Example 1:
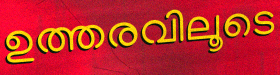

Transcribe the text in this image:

ഉത്തരവിലൂടെ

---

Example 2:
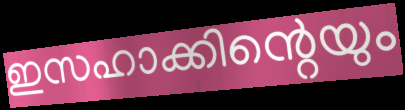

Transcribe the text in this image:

ഇസഹാക്കിന്റെയും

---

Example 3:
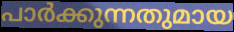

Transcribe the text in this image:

പാർക്കുന്നതുമായ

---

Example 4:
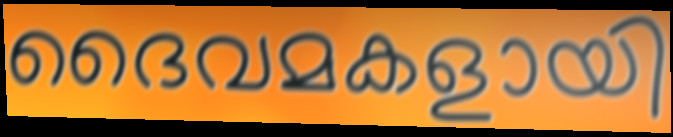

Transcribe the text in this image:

ദൈവമകളായി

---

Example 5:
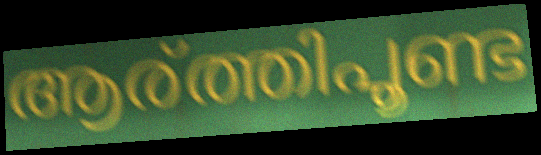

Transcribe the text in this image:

ആര്ത്തിപൂണ്ട